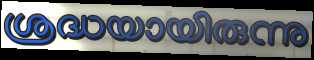
ശ്രദ്ധയായിരുന്നു